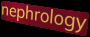
nephrology